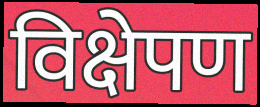
विक्षेपण